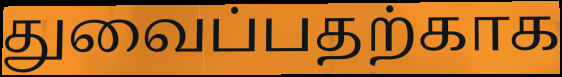
துவைப்பதற்காக